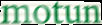
motun